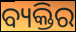
ବ୍ୟକ୍ତିର